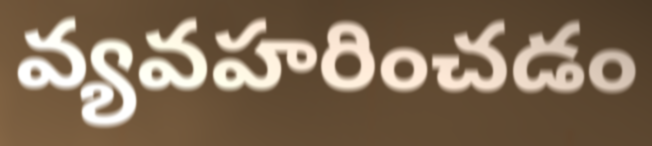
వ్యవహరించడం